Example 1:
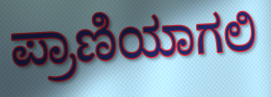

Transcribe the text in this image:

ಪ್ರಾಣಿಯಾಗಲಿ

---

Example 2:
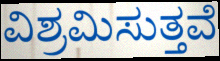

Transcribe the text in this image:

ವಿಶ್ರಮಿಸುತ್ತವೆ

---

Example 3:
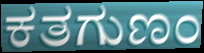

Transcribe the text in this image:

ಕತಗುಣಂ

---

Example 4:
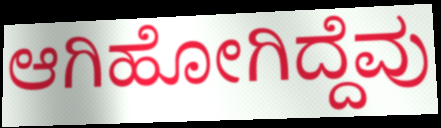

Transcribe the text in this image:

ಆಗಿಹೋಗಿದ್ದೆವು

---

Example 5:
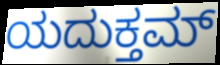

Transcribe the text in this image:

ಯದುಕ್ತಮ್